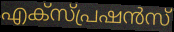
എക്സ്പ്രഷൻസ്